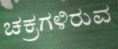
ಚಕ್ರಗಳಿರುವ